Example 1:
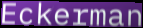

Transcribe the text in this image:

Eckerman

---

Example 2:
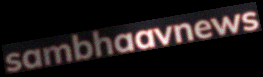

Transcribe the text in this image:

sambhaavnews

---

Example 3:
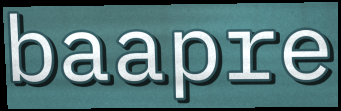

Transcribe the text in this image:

baapre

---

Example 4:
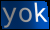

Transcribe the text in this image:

yok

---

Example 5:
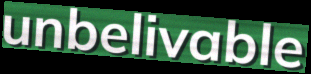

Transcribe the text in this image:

unbelivable